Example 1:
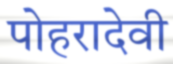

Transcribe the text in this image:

पोहरादेवी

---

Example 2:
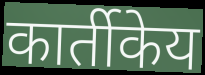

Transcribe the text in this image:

कार्तीकेय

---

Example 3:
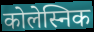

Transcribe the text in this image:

कोलेस्निक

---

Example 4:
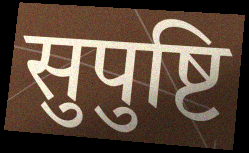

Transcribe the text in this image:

सुपुष्टि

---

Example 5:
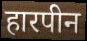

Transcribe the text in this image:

हारपीन